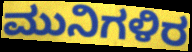
ಮುನಿಗಳಿರ